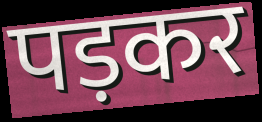
पड़कर